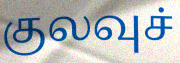
குலவுச்